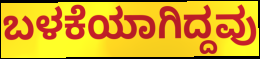
ಬಳಕೆಯಾಗಿದ್ದವು